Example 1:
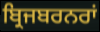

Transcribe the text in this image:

ਬ੍ਰਿਜਬਰਨਰਾਂ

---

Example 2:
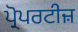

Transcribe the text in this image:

ਪ੍ਰੋਪਰਟੀਜ਼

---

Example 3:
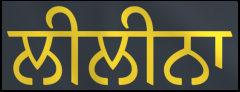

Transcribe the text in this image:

ਲੀਲੀਨਾ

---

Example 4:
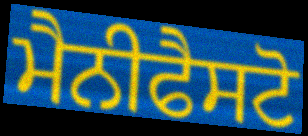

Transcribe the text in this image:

ਮੈਨੀਫੈਸਟੋ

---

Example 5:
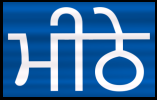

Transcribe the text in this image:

ਮੀਠੇ